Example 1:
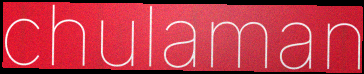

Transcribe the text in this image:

chulaman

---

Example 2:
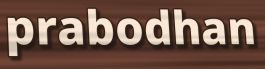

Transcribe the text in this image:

prabodhan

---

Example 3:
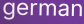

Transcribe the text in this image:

german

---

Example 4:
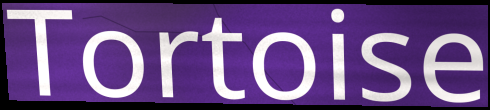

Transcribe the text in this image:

Tortoise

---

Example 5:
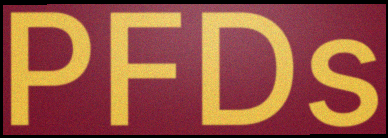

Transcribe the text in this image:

PFDs